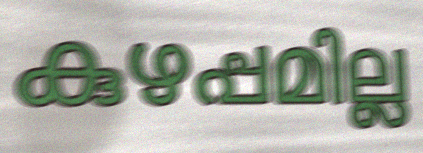
കുഴപ്പമില്ല